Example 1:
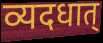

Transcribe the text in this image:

व्यदधात्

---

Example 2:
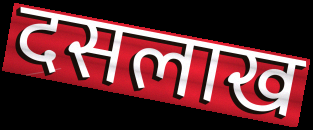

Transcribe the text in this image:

दसलाख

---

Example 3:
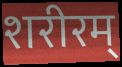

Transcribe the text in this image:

शरीरम्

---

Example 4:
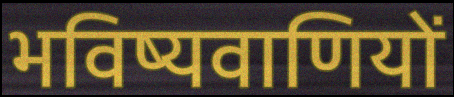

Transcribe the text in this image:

भविष्यवाणियों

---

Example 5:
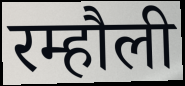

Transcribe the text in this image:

रम्हौली